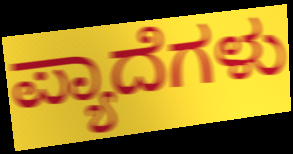
ಪ್ಯಾದೆಗಳು